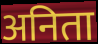
अनिता